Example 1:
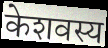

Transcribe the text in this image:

केशवस्य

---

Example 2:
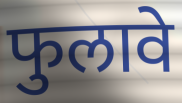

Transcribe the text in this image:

फुलावे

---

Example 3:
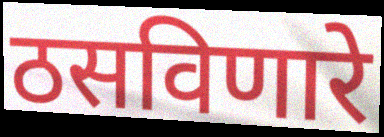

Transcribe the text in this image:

ठसविणारे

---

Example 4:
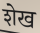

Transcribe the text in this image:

शेख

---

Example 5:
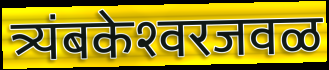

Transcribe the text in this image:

त्र्यंबकेश्वरजवळ